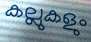
കല്ലുകളും